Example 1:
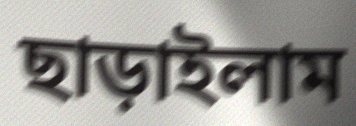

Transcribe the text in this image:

ছাড়াইলাম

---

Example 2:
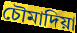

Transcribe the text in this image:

চৌমাদিয়া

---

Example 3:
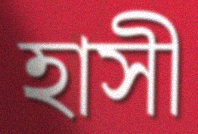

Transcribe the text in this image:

হাসী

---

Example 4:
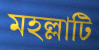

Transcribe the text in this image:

মহল্লাটি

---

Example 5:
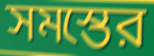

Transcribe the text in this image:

সমস্তের